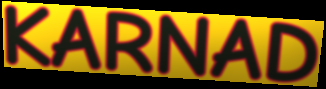
KARNAD